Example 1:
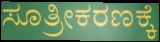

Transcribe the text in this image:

ಸೂತ್ರೀಕರಣಕ್ಕೆ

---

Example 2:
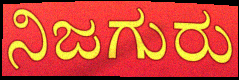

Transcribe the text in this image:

ನಿಜಗುರು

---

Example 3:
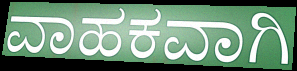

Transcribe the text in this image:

ವಾಹಕವಾಗಿ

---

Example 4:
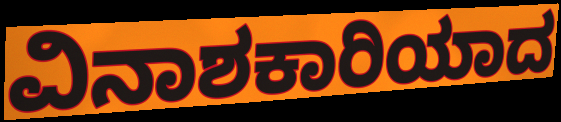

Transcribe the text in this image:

ವಿನಾಶಕಾರಿಯಾದ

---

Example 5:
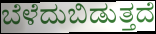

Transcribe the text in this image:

ಬೆಳೆದುಬಿಡುತ್ತದೆ